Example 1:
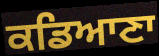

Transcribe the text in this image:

ਕਡਿਆਣਾ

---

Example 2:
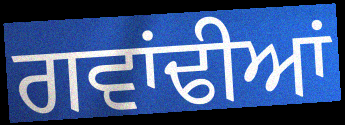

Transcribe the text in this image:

ਗਵਾਂਢੀਆਂ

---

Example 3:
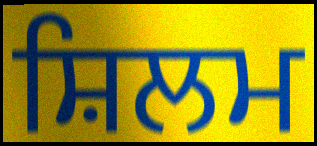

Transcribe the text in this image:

ਸ਼ਿਲਮ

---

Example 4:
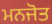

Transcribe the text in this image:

ਮਨਜੋਤ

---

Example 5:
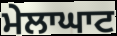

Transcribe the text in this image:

ਮੇਲਾਘਾਟ